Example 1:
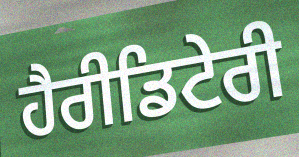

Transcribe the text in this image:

ਹੈਰੀਡਿਟੇਰੀ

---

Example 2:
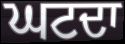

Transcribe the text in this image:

ਘਟਦਾ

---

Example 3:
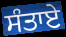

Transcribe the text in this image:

ਸੰਤਾਏ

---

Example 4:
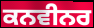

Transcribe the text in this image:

ਕਨਵੀਨਰ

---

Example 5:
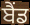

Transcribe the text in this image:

ਬੈੰਡ